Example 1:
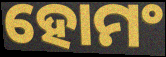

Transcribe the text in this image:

ହୋମଂ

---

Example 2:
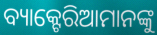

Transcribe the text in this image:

ବ୍ୟାକ୍ଟେରିଆମାନଙ୍କୁ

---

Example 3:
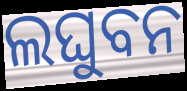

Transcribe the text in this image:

ଲଘୁବନ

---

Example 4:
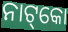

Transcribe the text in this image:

ନାଟ୍‌କୋ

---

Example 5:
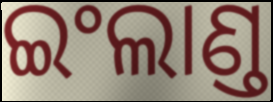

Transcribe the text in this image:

ଇଂଲାଣ୍ଡ